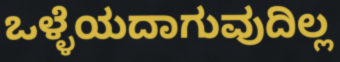
ಒಳ್ಳೆಯದಾಗುವುದಿಲ್ಲ